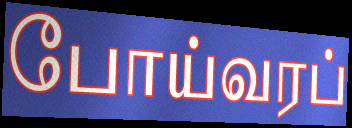
போய்வரப்